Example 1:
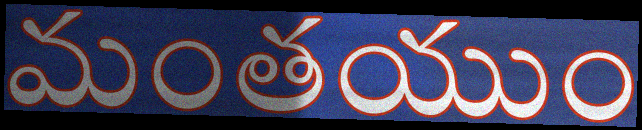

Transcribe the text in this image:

మంతయుం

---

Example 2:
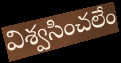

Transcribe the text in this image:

విశ్వసించలేం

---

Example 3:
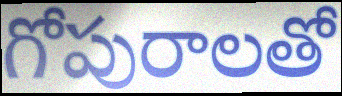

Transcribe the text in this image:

గోపురాలతో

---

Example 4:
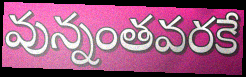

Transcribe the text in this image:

వున్నంతవరకే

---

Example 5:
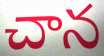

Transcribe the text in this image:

చాన